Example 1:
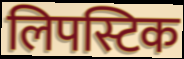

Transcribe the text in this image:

लिपस्टिक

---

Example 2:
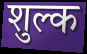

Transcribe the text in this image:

शुल्‍क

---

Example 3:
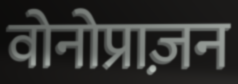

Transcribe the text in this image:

वोनोप्राज़न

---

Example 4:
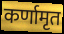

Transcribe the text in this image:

कर्णामृत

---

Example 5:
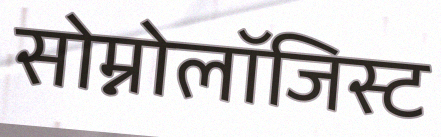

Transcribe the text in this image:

सोम्नोलॉजिस्ट